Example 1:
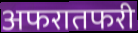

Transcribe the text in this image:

अफरातफरी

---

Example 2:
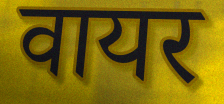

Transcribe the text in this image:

वायर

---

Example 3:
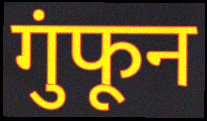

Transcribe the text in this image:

गुंफून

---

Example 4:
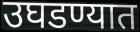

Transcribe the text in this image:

उघडण्यात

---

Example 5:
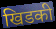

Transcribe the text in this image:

खिडकी